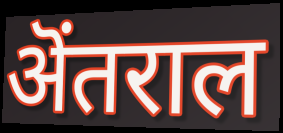
ऄंतराल